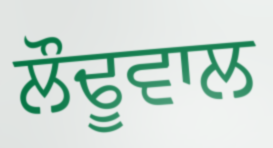
ਲੌਢੂਵਾਲ